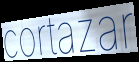
cortazar